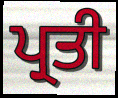
ਪ੍ਰ੍ਰਤੀ